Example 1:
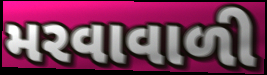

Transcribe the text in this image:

મરવાવાળી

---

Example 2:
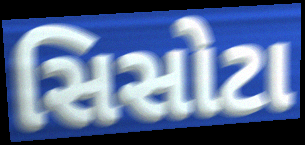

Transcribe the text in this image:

સિસોટા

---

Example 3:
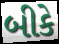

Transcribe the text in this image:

બીકે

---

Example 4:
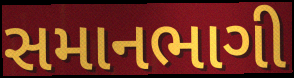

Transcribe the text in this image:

સમાનભાગી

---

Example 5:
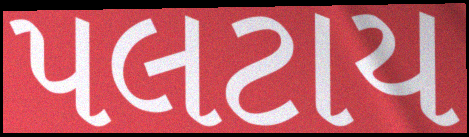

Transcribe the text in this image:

પલટાય